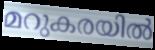
മറുകരയിൽ